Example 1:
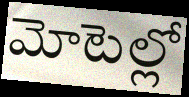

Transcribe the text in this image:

మోటెల్లో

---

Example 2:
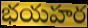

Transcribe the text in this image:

భయహర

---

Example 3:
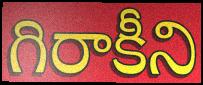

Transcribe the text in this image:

గిరాకీని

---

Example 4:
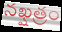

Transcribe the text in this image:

నఖ్షత్రం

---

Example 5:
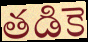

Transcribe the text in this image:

తడికె